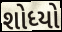
શોધ્યો